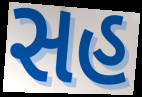
સહ